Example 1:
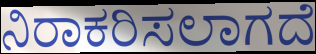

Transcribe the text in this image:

ನಿರಾಕರಿಸಲಾಗದೆ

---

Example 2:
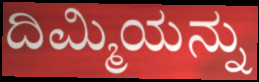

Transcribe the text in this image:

ದಿಮ್ಮಿಯನ್ನು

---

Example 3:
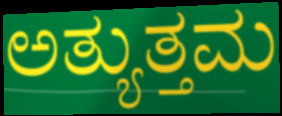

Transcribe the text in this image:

ಅತ್ಯುತ್ತಮ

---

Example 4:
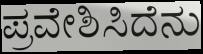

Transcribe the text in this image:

ಪ್ರವೇಶಿಸಿದೆನು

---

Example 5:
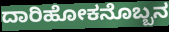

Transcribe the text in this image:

ದಾರಿಹೋಕನೊಬ್ಬನ